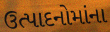
ઉત્પાદનોમાંના